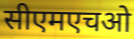
सीएमएचओ